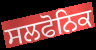
ਸਲਫੋਨਿਕ